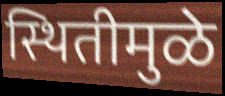
स्थितीमुळे